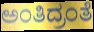
ಅಂತಿದ್ರಂತೆ